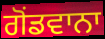
ਗੋਂਡਵਾਨਾ